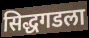
सिद्धगडला